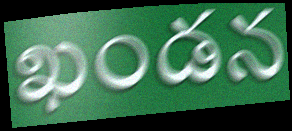
ఖండన